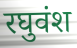
रघुवंश